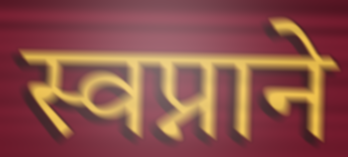
स्वप्नाने